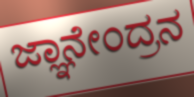
ಜ್ಞಾನೇಂದ್ರನ